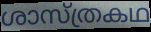
ശാസ്ത്രകഥ